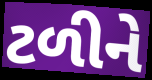
ટળીને